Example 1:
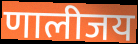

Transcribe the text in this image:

णालीजय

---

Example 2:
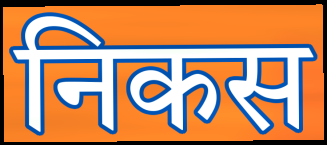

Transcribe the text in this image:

निकस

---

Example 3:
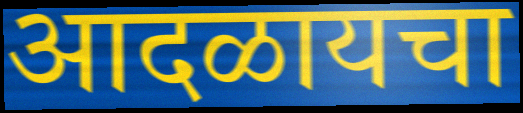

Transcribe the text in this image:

आदळायचा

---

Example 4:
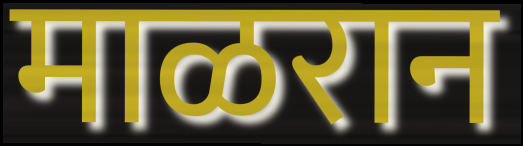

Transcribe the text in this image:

माळरान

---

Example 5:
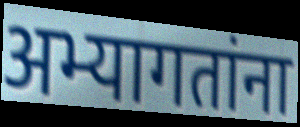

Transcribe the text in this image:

अभ्यागतांना